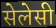
सेलेसी